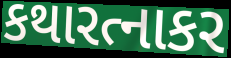
કથારત્નાકર